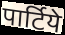
पार्टिये